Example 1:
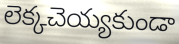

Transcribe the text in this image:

లెక్కచెయ్యకుండా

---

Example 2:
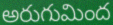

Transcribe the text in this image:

అరుగుమింద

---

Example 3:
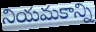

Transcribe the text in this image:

నియమకాన్ని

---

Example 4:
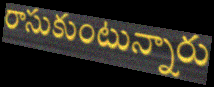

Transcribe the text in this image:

రాసుకుంటున్నారు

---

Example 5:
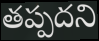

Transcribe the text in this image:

తప్పదని